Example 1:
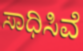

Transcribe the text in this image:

ಸಾಧಿಸಿವೆ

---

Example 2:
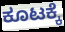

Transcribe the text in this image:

ಕೂಟಕ್ಕೆ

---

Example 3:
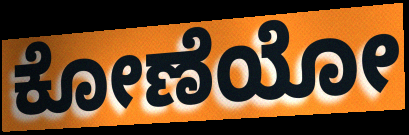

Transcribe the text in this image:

ಕೋಣೆಯೋ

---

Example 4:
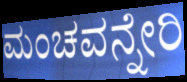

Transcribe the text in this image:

ಮಂಚವನ್ನೇರಿ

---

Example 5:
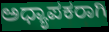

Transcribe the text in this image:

ಅಧ್ಯಾಪಕರಾಗಿ